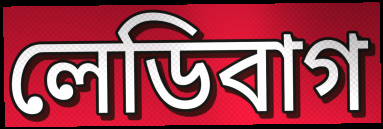
লেডিবাগ